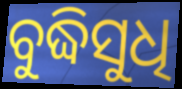
ବୁଦ୍ଧିସୁଧି